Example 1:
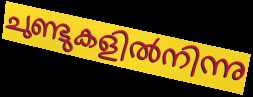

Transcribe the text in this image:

ചുണ്ടുകളിൽനിന്നു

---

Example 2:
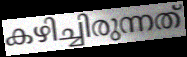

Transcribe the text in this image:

കഴിച്ചിരുന്നത്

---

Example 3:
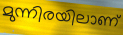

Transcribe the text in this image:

മുന്നിരയിലാണ്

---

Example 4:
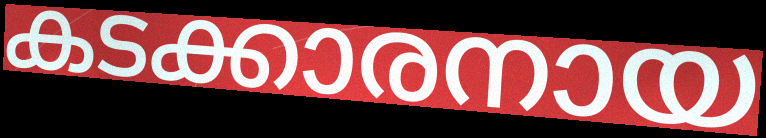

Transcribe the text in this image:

കടക്കാരനായ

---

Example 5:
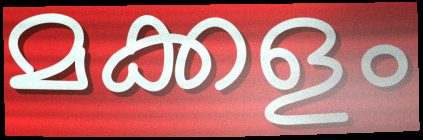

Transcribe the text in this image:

മക്കളം